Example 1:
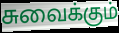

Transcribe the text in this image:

சுவைக்கும்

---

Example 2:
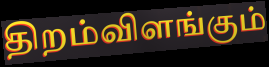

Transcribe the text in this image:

திறம்விளங்கும்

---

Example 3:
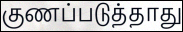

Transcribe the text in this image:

குணப்படுத்தாது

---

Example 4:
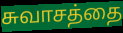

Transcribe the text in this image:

சுவாசத்தை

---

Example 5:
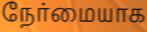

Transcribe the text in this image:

நேர்மையாக